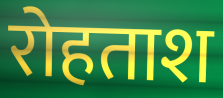
रोहताश